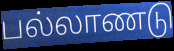
பல்லாணடு